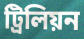
ট্রিলিয়ন